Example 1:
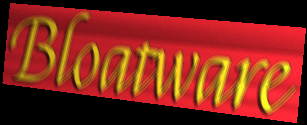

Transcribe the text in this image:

Bloatware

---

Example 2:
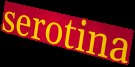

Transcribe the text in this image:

serotina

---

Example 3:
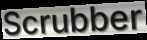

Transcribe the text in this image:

Scrubber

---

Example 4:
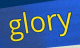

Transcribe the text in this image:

glory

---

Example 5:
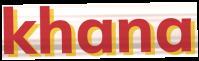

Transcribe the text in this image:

khana